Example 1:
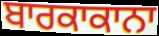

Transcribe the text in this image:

ਬਾਰਕਾਕਾਨਾ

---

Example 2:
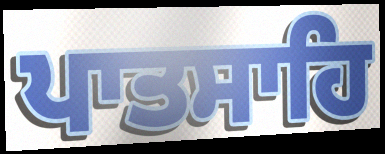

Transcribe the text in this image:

ਪਾਤਸਾਹਿ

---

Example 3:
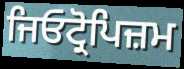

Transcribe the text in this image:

ਜਿਓਟ੍ਰੋਪਿਜ਼ਮ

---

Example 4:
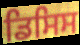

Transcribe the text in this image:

ਡਿਸਿਸ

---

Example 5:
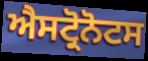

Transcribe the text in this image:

ਐਸਟ੍ਰੋਨੋਟਸ